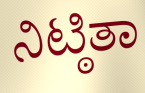
ನಿಟ್ಠಿತಾ